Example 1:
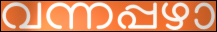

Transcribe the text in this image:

വന്നപ്പഴാ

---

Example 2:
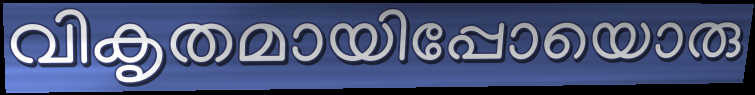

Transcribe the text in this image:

വികൃതമായിപ്പോയൊരു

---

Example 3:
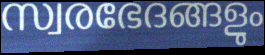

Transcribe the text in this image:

സ്വരഭേദങ്ങളും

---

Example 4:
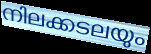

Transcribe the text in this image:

നിലക്കടലയും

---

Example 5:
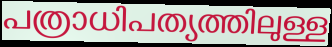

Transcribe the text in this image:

പത്രാധിപത്യത്തിലുള്ള